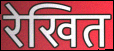
रेखित